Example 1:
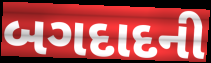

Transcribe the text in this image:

બગદાદની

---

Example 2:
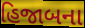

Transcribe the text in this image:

હિજાબના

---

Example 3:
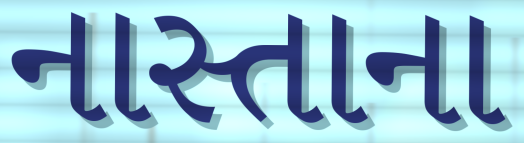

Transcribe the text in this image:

નાસ્તાના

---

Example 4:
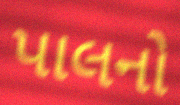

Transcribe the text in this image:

પાલનો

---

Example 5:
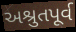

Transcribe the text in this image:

અશ્રુતપૂર્વ